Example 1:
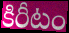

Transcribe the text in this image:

కిరీటం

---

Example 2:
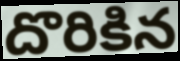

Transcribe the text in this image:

దొరికిన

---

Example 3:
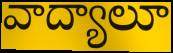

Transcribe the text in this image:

వాద్యాలూ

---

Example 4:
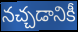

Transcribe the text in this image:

నచ్చడానికీ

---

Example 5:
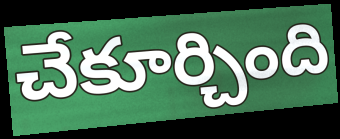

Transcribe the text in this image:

చేకూర్చింది